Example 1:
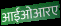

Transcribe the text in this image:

आईओआरए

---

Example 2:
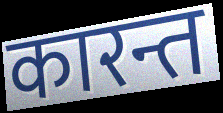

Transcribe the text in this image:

कारन्त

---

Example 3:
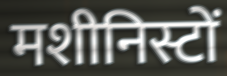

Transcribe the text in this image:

मशीनिस्टों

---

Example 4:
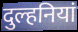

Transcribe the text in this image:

दुल्हनियां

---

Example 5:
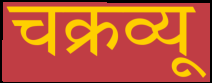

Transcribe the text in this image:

चक्रव्यू